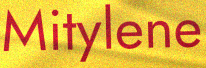
Mitylene